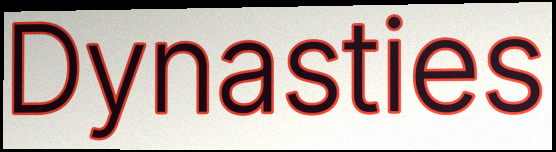
Dynasties